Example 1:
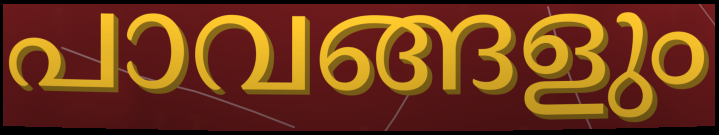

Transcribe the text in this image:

പാവങ്ങളും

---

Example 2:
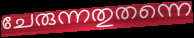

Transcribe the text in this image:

ചേരുന്നതുതന്നെ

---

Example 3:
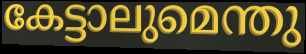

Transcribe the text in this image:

കേട്ടാലുമെന്തു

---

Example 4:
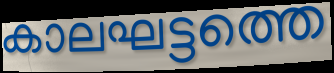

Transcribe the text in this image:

കാലഘട്ടത്തെ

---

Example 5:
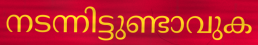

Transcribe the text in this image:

നടന്നിട്ടുണ്ടാവുക